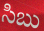
సిబు